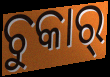
ଚୁକାର୍